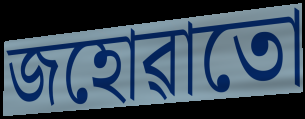
জহোৱাতো